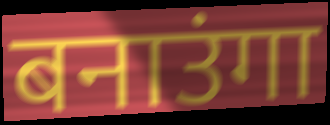
बनाउंगा